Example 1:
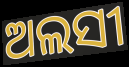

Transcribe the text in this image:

ଅଲସୀ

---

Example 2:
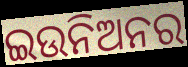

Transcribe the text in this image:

ଇଉନିଅନର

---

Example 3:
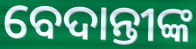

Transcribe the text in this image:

ବେଦାନ୍ତୀଙ୍କ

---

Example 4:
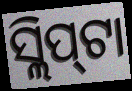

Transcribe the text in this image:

ସ୍ଲିପ୍‌ଟା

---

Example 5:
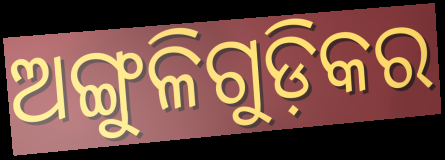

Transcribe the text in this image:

ଅଙ୍ଗୁଳିଗୁଡ଼ିକର